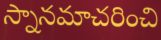
స్నానమాచరించి